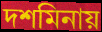
দশমিনায়